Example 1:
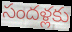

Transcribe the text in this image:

సందళ్లకు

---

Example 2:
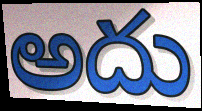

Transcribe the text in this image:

అదు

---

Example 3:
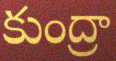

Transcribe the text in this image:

కుంద్రా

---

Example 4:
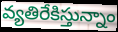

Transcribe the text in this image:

వ్యతిరేకిస్తున్నాం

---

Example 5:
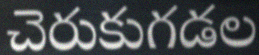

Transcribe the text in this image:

చెరుకుగడల